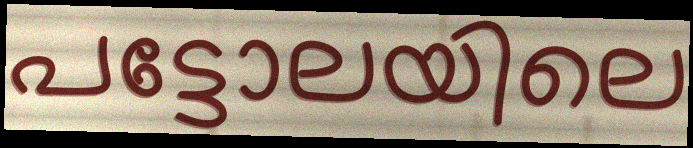
പട്ടോലയിലെ